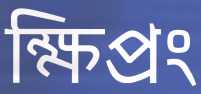
ক্ষিপ্রং